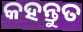
କହନ୍ତୁତ